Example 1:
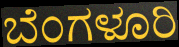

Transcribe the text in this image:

ಬೆಂಗಳೂರಿ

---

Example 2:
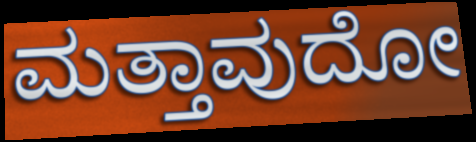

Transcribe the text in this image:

ಮತ್ತಾವುದೋ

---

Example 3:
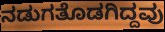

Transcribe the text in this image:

ನಡುಗತೊಡಗಿದ್ದವು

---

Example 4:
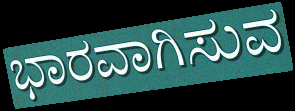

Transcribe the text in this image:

ಭಾರವಾಗಿಸುವ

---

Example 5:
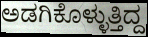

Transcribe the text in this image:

ಅಡಗಿಕೊಳ್ಳುತ್ತಿದ್ದ